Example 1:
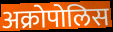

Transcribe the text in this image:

अक्रोपोलिस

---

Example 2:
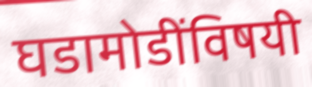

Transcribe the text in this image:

घडामोडींविषयी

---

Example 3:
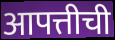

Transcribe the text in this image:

आपत्तीची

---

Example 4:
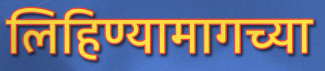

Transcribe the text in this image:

लिहिण्यामागच्या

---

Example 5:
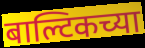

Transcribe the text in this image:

बाल्टिकच्या